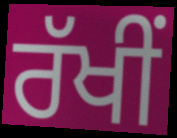
ਰੱਖੀਂ